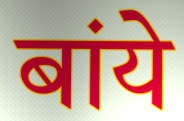
बांये